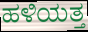
ಹಳಿಯತ್ತ